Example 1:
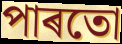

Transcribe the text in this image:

পাৰতো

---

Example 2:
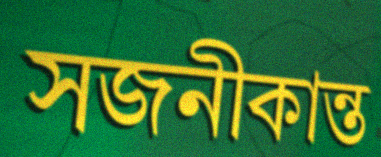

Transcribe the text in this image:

সজনীকান্ত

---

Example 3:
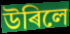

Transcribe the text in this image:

উৰিলে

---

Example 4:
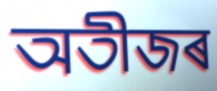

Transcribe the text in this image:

অতীজৰ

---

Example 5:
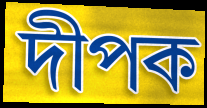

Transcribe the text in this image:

দীপক